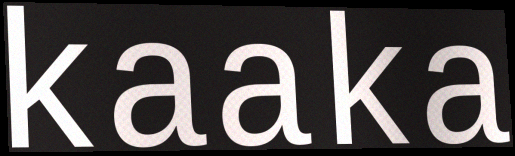
kaaka